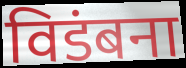
विडंबना